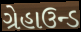
ગ્રેહાઉન્ડ